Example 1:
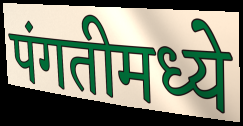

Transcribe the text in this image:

पंगतीमध्ये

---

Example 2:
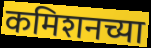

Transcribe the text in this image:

कमिशनच्या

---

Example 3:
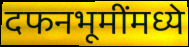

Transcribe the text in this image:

दफनभूमींमध्ये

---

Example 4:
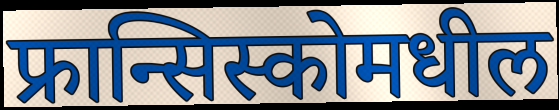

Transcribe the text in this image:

फ्रान्सिस्कोमधील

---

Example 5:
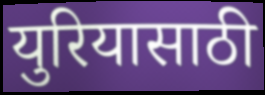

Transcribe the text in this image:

युरियासाठी